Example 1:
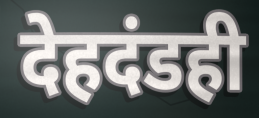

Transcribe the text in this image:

देहदंडही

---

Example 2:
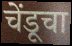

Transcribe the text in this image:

चेंडूचा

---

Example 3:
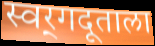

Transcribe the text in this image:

स्वर्गदूताला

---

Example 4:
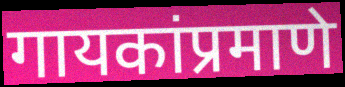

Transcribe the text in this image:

गायकांप्रमाणे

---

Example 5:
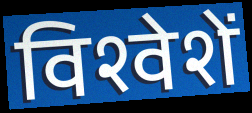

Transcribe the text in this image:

विश्वेशें